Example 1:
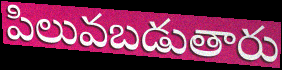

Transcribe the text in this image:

పిలువబడుతారు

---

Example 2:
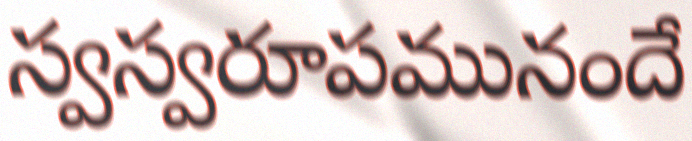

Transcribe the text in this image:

స్వస్వరూపమునందే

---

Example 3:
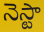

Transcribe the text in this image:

నెస్టా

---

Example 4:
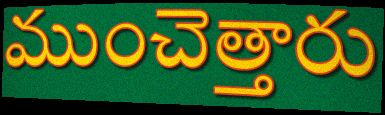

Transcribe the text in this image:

ముంచెత్తారు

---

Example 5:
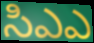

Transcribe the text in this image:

సిఎఎ